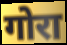
गोरा